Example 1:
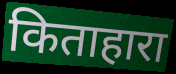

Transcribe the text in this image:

किताहारा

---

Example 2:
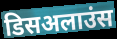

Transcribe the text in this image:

डिसअलाउंस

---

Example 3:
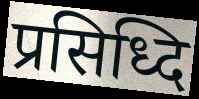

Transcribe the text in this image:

प्रसिध्दि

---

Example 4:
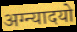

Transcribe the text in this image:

अग्न्यादयो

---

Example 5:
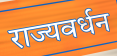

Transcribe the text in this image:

राज्यवर्धन